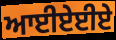
ਆਈਏਈਏ